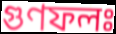
গুণফলঃ